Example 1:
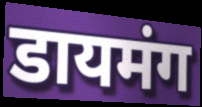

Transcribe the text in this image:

डायमंग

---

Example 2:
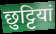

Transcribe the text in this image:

छुट्टियां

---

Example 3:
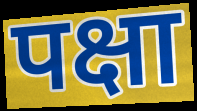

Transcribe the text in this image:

पक्षा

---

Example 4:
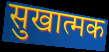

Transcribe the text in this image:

सुखात्मक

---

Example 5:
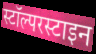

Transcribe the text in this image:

स्टॉल्परस्टाइन